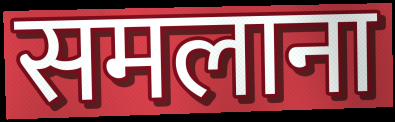
समलाना